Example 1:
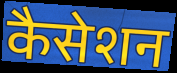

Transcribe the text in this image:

कैसेशन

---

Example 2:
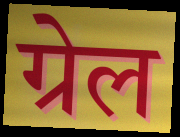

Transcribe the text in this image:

ग्रेल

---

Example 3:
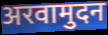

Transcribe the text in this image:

अरवामुदन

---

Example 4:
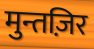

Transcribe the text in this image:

मुन्तज़िर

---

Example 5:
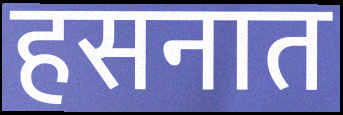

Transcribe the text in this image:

हसनात